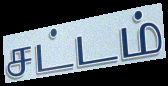
சட்டம்